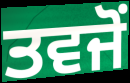
ਤਵਜੋਂ